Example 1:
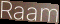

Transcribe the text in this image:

Raam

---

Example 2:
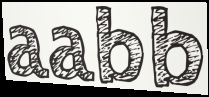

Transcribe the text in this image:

aabb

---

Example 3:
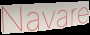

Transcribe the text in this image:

Navare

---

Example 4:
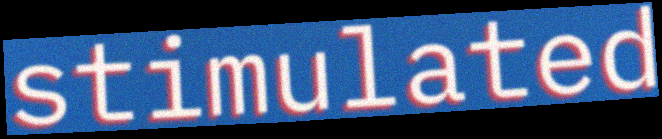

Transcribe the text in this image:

stimulated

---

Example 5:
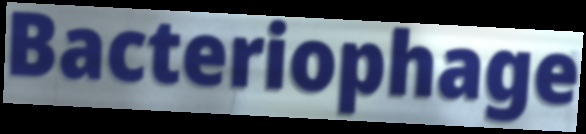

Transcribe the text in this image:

Bacteriophage